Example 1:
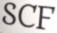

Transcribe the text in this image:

SCF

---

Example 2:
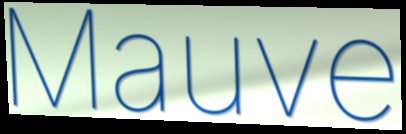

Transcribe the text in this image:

Mauve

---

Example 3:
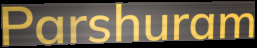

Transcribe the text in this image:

Parshuram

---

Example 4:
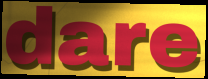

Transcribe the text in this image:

dare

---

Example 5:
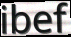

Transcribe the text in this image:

ibef